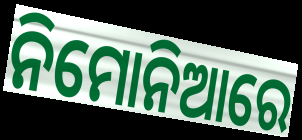
ନିମୋନିଆରେ